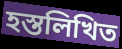
হস্তলিখিত